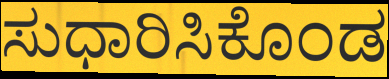
ಸುಧಾರಿಸಿಕೊಂಡ